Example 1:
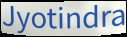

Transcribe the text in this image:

Jyotindra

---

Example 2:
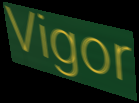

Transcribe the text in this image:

Vigor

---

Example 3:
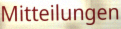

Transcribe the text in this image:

Mitteilungen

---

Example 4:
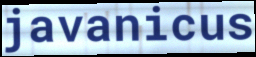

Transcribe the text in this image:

javanicus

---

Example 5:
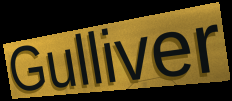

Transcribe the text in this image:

Gulliver